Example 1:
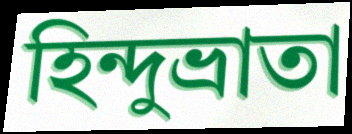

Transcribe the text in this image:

হিন্দুভ্রাতা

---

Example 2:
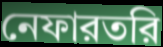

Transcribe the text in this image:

নেফারতরি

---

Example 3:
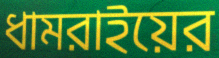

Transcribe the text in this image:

ধামরাইয়ের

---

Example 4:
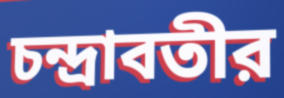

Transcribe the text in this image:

চন্দ্রাবতীর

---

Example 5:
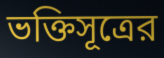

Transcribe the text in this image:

ভক্তিসূত্রের